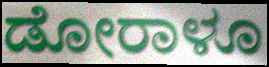
ಡೋರಾಳೂ